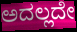
ಅದಲ್ಲದೇ